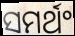
ସମର୍ଥଂ